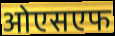
ओएसएफ